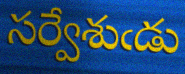
సర్వేశుఁడు